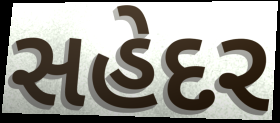
સહેદર